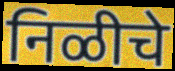
निळीचे